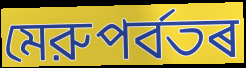
মেৰুপৰ্বতৰ